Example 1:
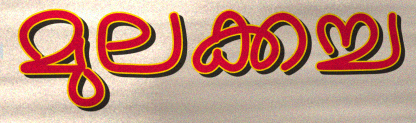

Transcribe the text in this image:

മുലക്കച്ച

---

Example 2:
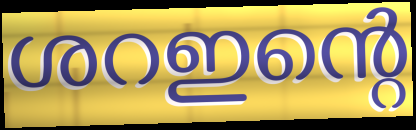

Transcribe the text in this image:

ശറഇന്റെ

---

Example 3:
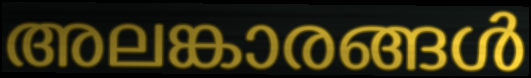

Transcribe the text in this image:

അലങ്കാരങ്ങൾ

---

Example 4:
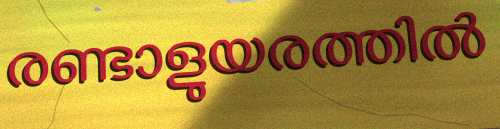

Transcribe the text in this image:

രണ്ടാളുയരത്തിൽ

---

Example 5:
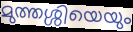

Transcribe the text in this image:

മുത്തശ്ശിയെയും